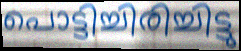
പൊട്ടിച്ചിരിച്ചിട്ടു